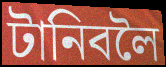
টানিবলৈ